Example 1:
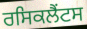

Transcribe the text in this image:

ਰਸਿਕਲੈਂਟਸ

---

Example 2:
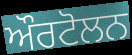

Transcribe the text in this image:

ਔਰਟੋਲਨ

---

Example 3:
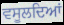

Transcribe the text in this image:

ਵਸੂਲਦਿਆਂ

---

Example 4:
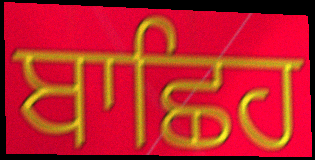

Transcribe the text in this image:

ਬਾਛਿਹ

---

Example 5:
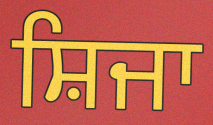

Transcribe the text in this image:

ਸ਼ਿਜਾ